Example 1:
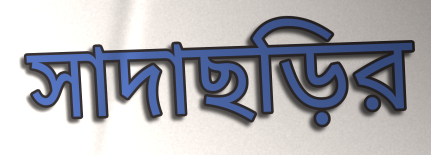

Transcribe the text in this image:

সাদাছড়ির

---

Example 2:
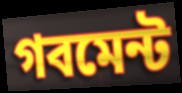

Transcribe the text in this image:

গবমেন্ট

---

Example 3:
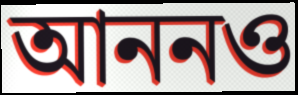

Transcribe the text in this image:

আননও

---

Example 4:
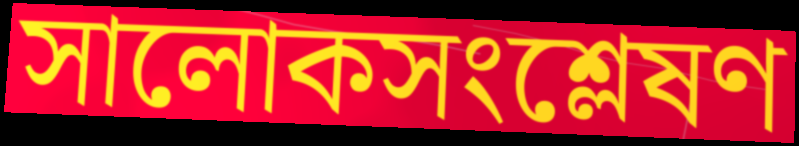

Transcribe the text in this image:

সালোকসংশ্লেষণ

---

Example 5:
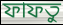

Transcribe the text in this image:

ফাফতু